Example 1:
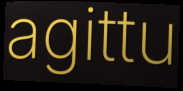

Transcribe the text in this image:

agittu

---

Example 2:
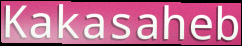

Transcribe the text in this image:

Kakasaheb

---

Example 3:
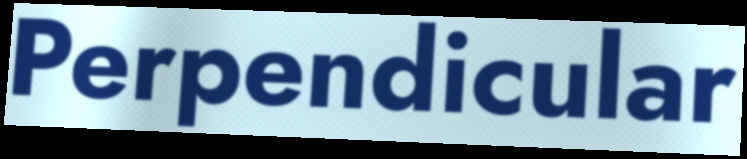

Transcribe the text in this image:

Perpendicular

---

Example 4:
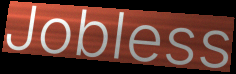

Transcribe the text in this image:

Jobless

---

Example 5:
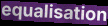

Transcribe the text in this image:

equalisation